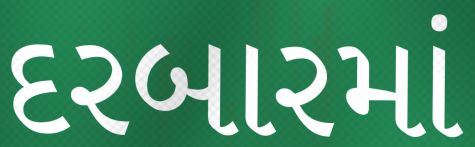
દરબારમાં